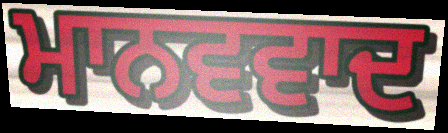
ਮਾਨਵਵਾਦ